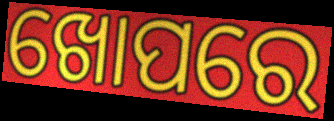
ଖୋପରେ